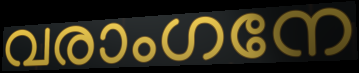
വരാംഗനേ